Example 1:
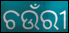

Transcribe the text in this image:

ଚଉଁରୀ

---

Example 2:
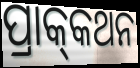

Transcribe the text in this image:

ପ୍ରାକ୍‌କଥନ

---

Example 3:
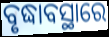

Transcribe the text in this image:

ବୃଦ୍ଧାବସ୍ଥାରେ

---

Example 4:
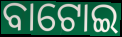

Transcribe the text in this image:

ବାଟୋଇ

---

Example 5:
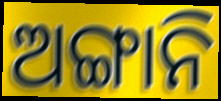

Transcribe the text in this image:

ଅଙ୍ଗାନି